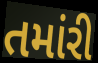
તમાંરી